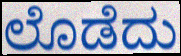
ಲೊಡೆದು